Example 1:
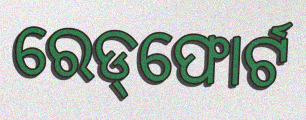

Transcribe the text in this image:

ରେଡ୍‌ଫୋର୍ଟ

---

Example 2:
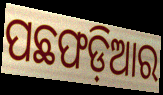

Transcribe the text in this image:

ପଛଫଡ଼ିଆର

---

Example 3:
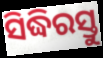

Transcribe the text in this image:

ସିଦ୍ଧିରସ୍ତୁ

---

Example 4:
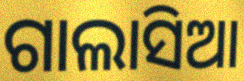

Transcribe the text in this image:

ଗାଲାସିଆ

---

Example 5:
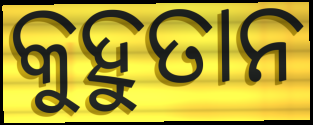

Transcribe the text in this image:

କୁହୁତାନ